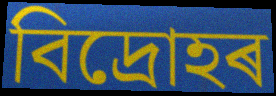
বিদ্ৰোহৰ